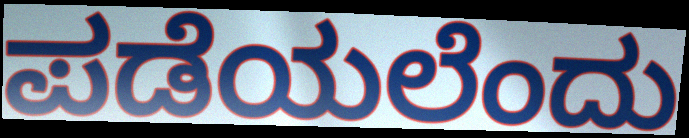
ಪಡೆಯಲೆಂದು